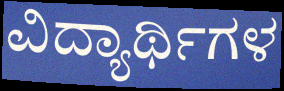
ವಿದ್ಯಾರ್ಥಿಗಳ